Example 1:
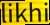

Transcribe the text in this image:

likhi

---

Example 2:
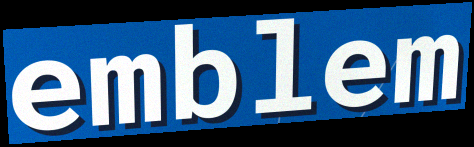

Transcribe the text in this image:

emblem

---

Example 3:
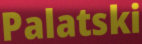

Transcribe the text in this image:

Palatski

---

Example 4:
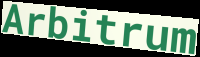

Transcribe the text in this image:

Arbitrum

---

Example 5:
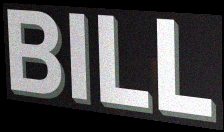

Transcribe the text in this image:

BILL